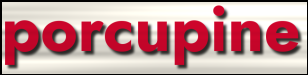
porcupine